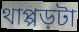
থাপ্পড়টা